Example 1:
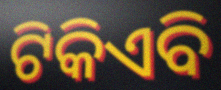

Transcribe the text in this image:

ଟିକିଏବି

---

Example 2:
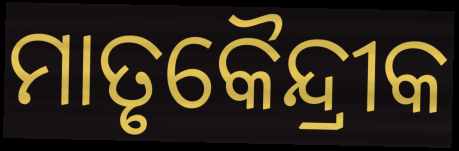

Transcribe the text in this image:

ମାତୃକୈନ୍ଦ୍ରୀକ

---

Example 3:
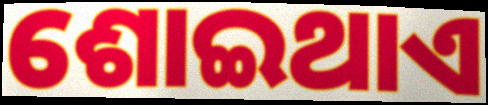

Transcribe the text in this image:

ଶୋଇଥାଏ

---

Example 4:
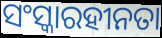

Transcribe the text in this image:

ସଂସ୍କାରହୀନତା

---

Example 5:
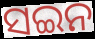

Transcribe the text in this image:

ସଇନ